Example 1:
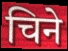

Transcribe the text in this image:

चिने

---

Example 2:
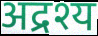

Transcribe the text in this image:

अद्रश्य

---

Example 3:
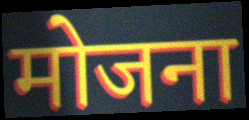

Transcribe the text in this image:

मोजना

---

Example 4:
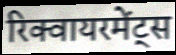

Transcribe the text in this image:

रिक्वायरमेंट्स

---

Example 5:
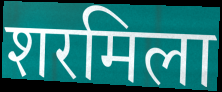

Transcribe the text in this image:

शरमिला